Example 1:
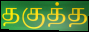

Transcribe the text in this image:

தகுத்த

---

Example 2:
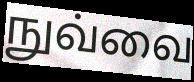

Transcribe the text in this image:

நுவ்வை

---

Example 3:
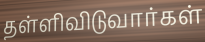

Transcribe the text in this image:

தள்ளிவிடுவார்கள்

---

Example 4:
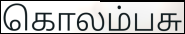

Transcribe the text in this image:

கொலம்பசு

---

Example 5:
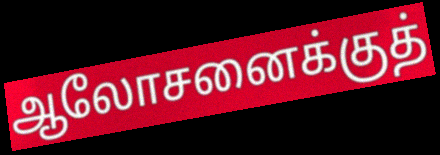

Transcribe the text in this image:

ஆலோசனைக்குத்